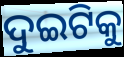
ଦୁଇଟିକୁ